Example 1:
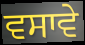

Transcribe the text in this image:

ਵਸਾਵੇ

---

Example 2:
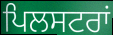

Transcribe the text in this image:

ਪਿਲਸਟਰਾਂ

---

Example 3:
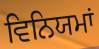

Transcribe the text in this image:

ਵਿਨਿਯਮਾਂ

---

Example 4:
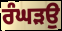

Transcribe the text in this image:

ਰੰਘੜਉ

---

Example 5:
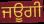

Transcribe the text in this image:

ਜਊਗੀ